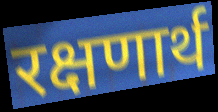
रक्षणार्थ